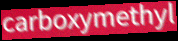
carboxymethyl